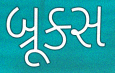
બ્રૂક્સ